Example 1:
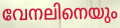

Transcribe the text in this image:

വേനലിനെയും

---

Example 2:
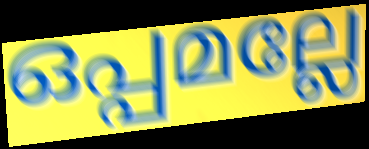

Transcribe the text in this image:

ഒപ്പമല്ലേ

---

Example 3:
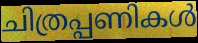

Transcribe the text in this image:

ചിത്രപ്പണികൾ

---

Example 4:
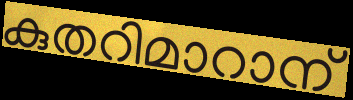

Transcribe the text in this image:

കുതറിമാറാന്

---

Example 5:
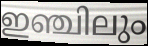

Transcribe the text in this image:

ഇഞ്ചിലും